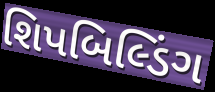
શિપબિલ્ડિંગ